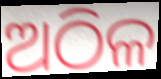
ଅଠିଳ